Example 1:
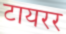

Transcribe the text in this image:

टायरर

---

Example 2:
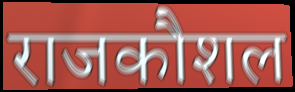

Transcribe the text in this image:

राजकौशल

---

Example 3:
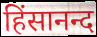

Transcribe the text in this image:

हिंसानन्द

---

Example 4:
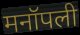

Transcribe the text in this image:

मनॉपली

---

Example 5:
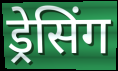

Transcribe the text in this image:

ड्रेसिंग